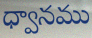
ధ్వానము